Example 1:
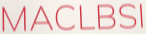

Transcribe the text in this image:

MACLBSI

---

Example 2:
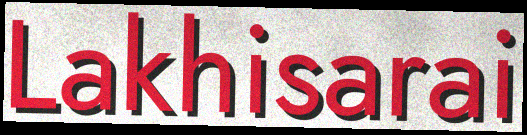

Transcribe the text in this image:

Lakhisarai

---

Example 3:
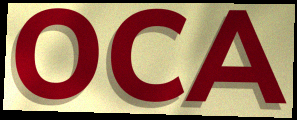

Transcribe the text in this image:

OCA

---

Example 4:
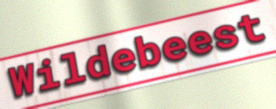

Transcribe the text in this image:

Wildebeest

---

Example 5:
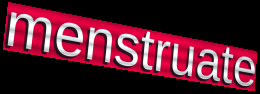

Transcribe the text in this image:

menstruate